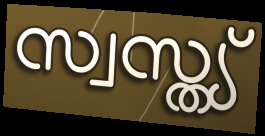
സ്വസ്ത്യ്